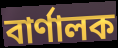
বাৰ্ণালক